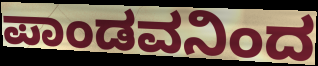
ಪಾಂಡವನಿಂದ